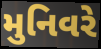
મુનિવરે